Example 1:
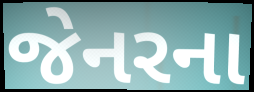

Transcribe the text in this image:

જેનરના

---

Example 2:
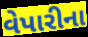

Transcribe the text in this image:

વેપારીના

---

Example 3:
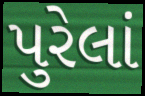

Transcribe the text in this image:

પુરેલાં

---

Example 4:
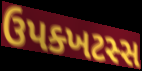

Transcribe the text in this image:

ઉપક્ખટસ્સ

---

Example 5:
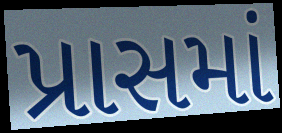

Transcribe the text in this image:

પ્રાસમાં